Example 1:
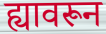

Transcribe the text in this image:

ह्यावरून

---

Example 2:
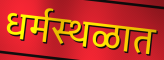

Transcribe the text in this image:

धर्मस्थळात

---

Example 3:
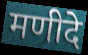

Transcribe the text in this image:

मणीदे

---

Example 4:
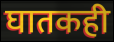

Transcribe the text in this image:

घातकही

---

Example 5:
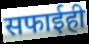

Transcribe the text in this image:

सफाईही